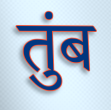
तुंब